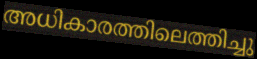
അധികാരത്തിലെത്തിച്ചു